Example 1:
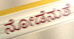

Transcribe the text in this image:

ನೋಡೆನುತೆ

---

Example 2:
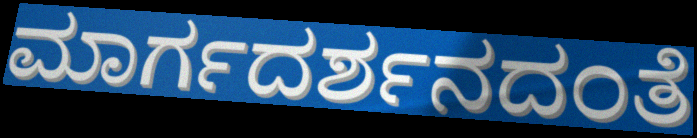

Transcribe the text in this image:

ಮಾರ್ಗದರ್ಶನದಂತೆ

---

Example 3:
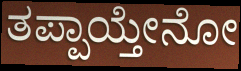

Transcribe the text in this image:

ತಪ್ಪಾಯ್ತೇನೋ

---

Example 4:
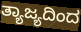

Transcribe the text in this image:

ತ್ಯಾಜ್ಯದಿಂದ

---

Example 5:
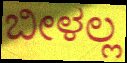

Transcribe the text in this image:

ಬೀಳಲ್ಲ